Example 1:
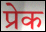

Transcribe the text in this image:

प्रेक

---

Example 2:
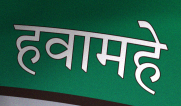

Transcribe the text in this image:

हवामहे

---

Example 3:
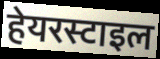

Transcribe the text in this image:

हेयरस्टाइल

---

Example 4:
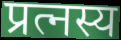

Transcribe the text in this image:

प्रत्नस्य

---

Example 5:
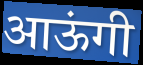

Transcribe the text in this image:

आऊंगी